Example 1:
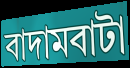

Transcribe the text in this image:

বাদামবাটা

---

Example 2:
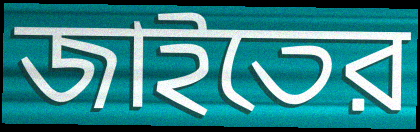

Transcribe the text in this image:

জাইতের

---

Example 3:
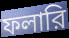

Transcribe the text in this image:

ফলারি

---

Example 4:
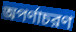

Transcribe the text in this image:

অপর্ণাচরণ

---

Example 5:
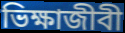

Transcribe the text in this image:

ভিক্ষাজীবী